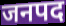
जनपद